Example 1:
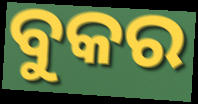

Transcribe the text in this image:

ବୁକର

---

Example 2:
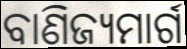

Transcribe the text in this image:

ବାଣିଜ୍ୟମାର୍ଗ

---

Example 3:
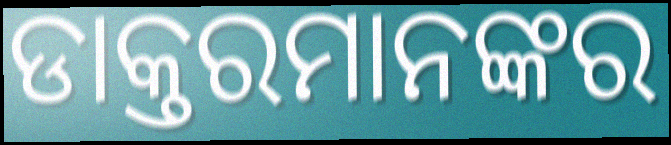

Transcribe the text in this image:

ଡାକ୍ତରମାନଙ୍କର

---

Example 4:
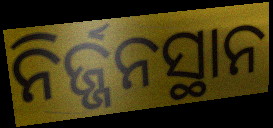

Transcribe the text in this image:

ନିର୍ଜ୍ଜନସ୍ଥାନ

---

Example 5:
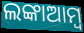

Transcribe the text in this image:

ଲଙ୍କାଆମ୍ବ